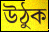
উঠুক